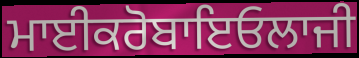
ਮਾਈਕਰੋਬਾਇਓਲਾਜੀ